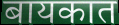
बायकात